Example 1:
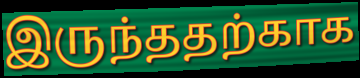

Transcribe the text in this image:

இருந்ததற்காக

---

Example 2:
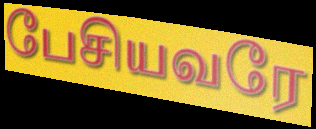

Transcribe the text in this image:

பேசியவரே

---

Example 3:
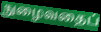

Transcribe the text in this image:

நுழைவதைப்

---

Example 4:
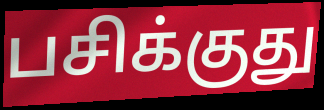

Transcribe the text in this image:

பசிக்குது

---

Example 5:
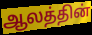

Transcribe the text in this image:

ஆலத்தின்